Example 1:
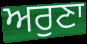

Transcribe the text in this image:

ਅਰੁਣਾ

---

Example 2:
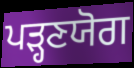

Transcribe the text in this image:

ਪੜ੍ਹਣਯੋਗ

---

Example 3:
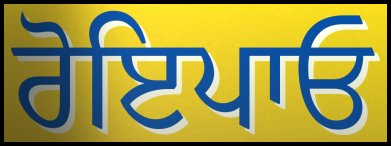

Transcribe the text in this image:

ਰੋਇਪਾਓ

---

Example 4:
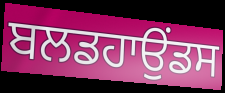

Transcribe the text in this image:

ਬਲਡਹਾਉਂਡਸ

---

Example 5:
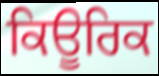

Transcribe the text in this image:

ਕਿਊਰਿਕ